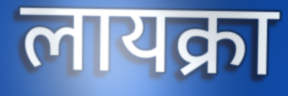
लायक्रा